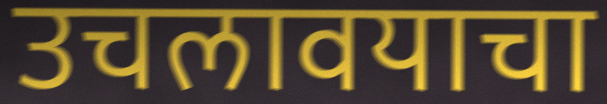
उचलावयाचा